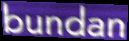
bundan